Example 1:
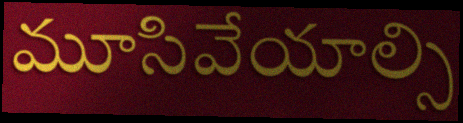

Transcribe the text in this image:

మూసివేయాల్సి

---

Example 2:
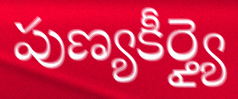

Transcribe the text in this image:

పుణ్యకీర్త్యై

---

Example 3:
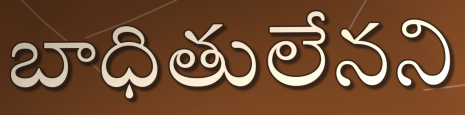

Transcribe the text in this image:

బాధితులేనని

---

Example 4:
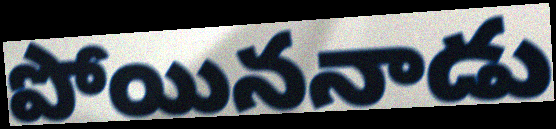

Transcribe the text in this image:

పోయిననాడు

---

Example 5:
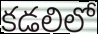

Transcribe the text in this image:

కడలిలో